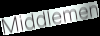
Middlemen